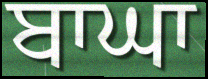
ਬਾਘਾ